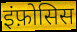
इंफ़ोसिस